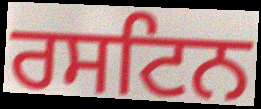
ਰਸਟਿਨ